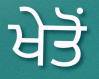
ਖੇਤੋਂ